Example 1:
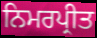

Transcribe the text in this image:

ਨਿਮਰਪ੍ਰੀਤ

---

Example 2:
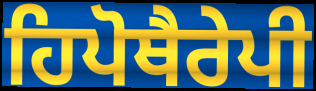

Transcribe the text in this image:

ਹਿਪੋਥੈਰੇਪੀ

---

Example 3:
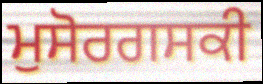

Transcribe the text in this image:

ਮੁਸੋਰਗਸਕੀ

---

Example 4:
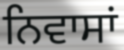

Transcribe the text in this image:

ਨਿਵਾਸਾਂ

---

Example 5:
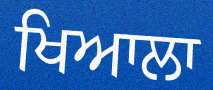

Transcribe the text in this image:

ਖਿਆਲਾ